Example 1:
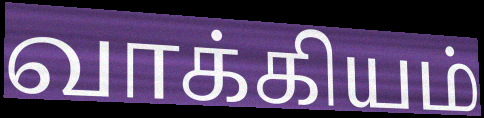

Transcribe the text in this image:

வாக்கியம்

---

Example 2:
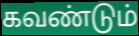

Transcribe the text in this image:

கவண்டும்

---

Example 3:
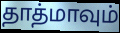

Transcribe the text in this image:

தாத்மாவும்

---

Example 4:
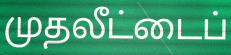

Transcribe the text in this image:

முதலீட்டைப்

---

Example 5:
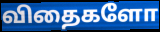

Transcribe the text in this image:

விதைகளோ